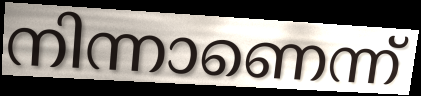
നിന്നാണെന്ന്